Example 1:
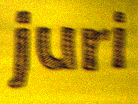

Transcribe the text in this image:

juri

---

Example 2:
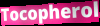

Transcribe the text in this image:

Tocopherol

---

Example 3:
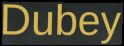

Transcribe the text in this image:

Dubey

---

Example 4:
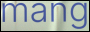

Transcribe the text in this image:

mang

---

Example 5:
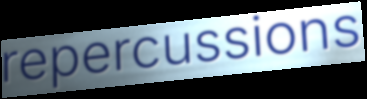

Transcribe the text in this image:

repercussions